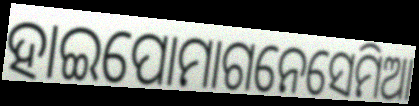
ହାଇପୋମାଗନେସେମିଆ